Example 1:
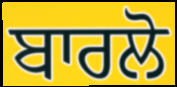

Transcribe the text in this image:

ਬਾਰਲੋ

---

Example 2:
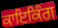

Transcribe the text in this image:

ਕਾਇਕਿੰਗ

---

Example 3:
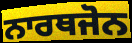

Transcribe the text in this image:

ਨਾਰਥਜੋਨ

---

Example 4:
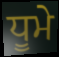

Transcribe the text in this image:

ਧੂਮੇ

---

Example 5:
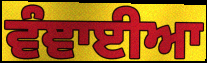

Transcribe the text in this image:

ਵੰਞਾਈਆ